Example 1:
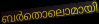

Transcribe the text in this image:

ബർതൊലൊമായി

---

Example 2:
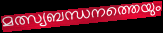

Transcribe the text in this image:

മത്സ്യബന്ധനത്തെയും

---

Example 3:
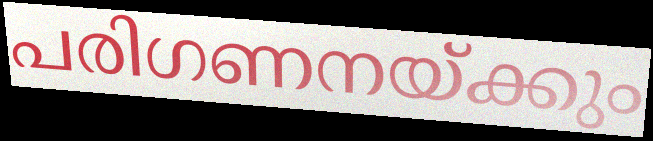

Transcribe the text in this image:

പരിഗണനയ്ക്കും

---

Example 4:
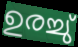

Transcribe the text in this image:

ഉരച്ചു്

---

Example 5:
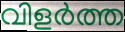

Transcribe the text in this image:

വിളർത്ത